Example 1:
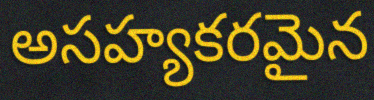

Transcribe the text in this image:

అసహ్యకరమైన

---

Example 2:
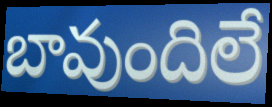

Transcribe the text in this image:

బావుందిలే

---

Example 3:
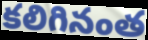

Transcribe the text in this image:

కలిగినంత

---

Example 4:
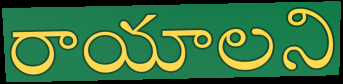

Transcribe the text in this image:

రాయాలని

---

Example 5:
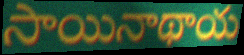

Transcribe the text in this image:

సాయినాథాయ